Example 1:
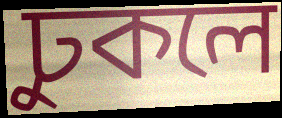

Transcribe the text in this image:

ঢুকলে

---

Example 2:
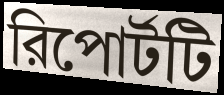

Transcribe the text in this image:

রিপোর্টটি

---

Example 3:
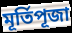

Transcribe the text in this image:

মূর্তিপূজা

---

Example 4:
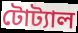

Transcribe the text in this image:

টোট্যাল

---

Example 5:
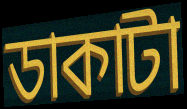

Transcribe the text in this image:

ডাকাটা